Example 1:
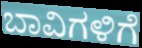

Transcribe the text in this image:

ಬಾವಿಗಳಿಗೆ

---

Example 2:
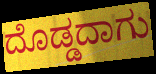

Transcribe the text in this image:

ದೊಡ್ಡದಾಗು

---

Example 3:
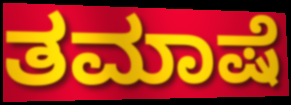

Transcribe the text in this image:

ತಮಾಷೆ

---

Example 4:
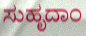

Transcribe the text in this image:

ಸುಹೃದಾಂ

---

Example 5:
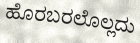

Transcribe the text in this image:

ಹೊರಬರಲೊಲ್ಲದು